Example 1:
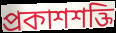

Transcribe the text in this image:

প্রকাশশক্তি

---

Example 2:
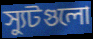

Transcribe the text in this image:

স্যুটগুলো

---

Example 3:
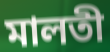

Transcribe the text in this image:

মালতী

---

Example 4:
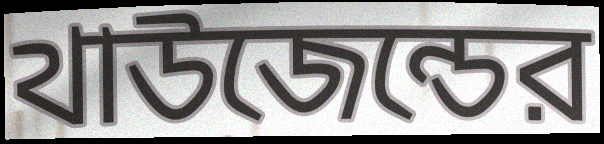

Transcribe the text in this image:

থাউজেন্ডের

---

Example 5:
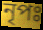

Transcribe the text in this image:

নৃপঃ